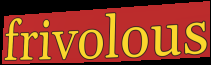
frivolous